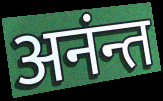
अनंन्त